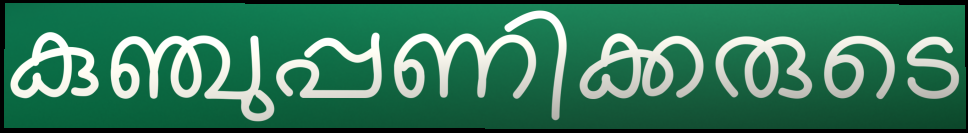
കുഞ്ചുപ്പണിക്കരുടെ